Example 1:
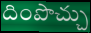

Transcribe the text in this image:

దింపొచ్చు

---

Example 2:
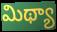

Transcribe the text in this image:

మిథ్యా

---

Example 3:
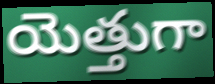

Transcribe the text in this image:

యెత్తుగా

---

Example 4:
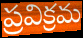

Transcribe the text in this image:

ప్రవిక్రమ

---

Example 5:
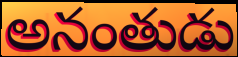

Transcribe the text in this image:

అనంతుడు